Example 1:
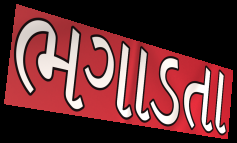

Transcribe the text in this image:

ભગાડતા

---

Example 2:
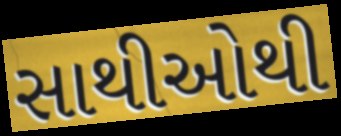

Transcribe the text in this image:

સાથીઓથી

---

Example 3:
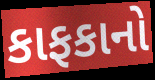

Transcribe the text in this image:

કાફકાનો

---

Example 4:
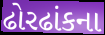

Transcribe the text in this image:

ઢોરઢાંકના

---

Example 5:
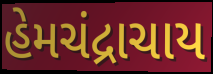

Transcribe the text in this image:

હેમચંદ્રાચાય